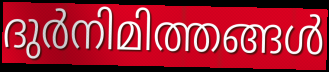
ദുർനിമിത്തങ്ങൾ